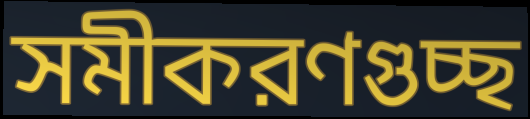
সমীকরণগুচ্ছ